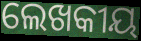
ଲେଖକୀୟ